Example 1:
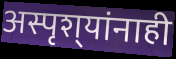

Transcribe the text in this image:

अस्पृश्यांनाही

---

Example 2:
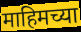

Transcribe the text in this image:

माहिमच्या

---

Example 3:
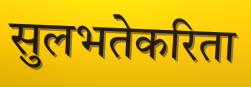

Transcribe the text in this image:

सुलभतेकरिता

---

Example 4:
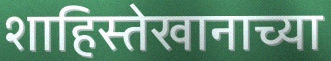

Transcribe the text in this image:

शाहिस्तेखानाच्या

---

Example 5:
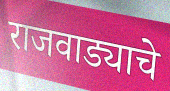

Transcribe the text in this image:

राजवाड्याचे